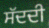
ਸੱਦਦੀ